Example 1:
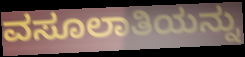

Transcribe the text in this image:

ವಸೂಲಾತಿಯನ್ನು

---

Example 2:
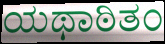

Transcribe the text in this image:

ಯಥಾಠಿತಂ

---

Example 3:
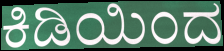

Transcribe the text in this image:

ಕಿಡಿಯಿಂದ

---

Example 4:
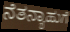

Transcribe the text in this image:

ನೆತನ್ಯಾಹುಗೆ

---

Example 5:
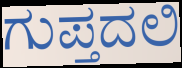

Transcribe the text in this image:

ಗುಪ್ತದಲಿ